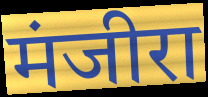
मंजीरा